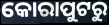
କୋରାପୁଟରୁ